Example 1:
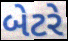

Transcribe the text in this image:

બેટરે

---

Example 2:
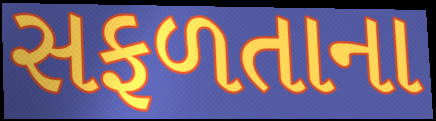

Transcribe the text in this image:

સફળતાના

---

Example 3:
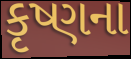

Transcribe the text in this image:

કૃષ્ણના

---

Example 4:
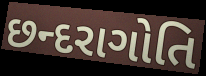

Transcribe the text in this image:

છન્દરાગોતિ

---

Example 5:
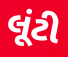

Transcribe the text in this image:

લૂંટી